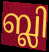
ബ്ലി